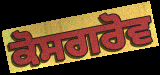
ਕੋਸਗਰੋਵ